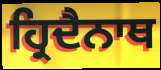
ਹ੍ਰਿਦੈਨਾਥ